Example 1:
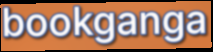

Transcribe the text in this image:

bookganga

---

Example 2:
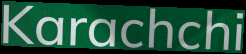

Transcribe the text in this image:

Karachchi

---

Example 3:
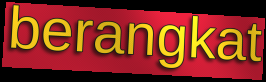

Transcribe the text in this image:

berangkat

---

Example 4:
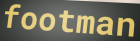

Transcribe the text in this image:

footman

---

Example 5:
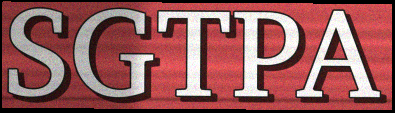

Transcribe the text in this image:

SGTPA